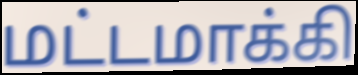
மட்டமாக்கி